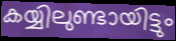
കയ്യിലുണ്ടായിട്ടും